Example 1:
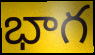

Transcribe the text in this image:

భాగ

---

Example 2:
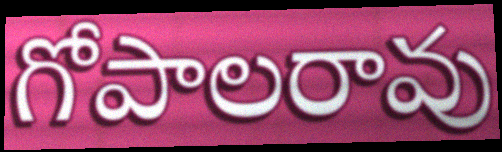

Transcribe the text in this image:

గోపాలరావు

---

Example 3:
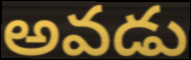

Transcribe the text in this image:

అవడు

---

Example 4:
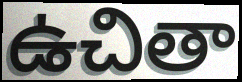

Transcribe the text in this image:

ఉచితా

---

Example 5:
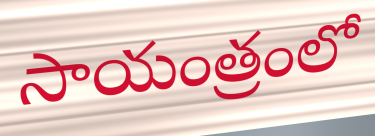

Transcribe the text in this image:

సాయంత్రంలో